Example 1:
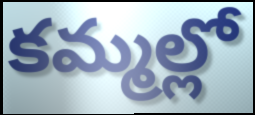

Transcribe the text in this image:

కమ్మల్లో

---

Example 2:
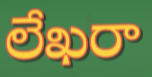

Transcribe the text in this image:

లేఖరా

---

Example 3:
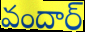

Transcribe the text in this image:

వందార్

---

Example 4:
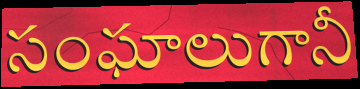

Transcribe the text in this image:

సంఘాలుగానీ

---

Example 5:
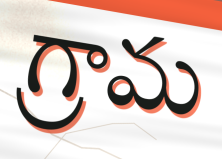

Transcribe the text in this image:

గ్రామ